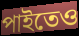
পাইতেও